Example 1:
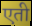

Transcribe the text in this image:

एती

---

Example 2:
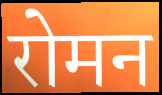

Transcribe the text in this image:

रोमन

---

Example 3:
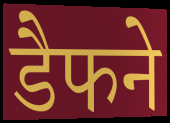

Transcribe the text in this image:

डैफने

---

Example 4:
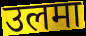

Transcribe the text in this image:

उलमा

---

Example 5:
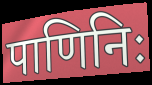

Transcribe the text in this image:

पाणिनिः